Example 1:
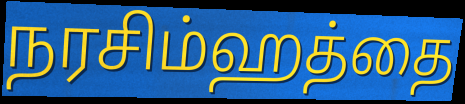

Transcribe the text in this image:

நரசிம்ஹத்தை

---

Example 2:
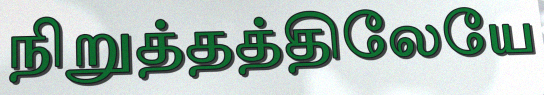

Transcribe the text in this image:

நிறுத்தத்திலேயே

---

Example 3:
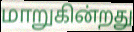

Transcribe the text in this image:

மாறுகின்றது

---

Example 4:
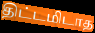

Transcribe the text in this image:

திட்டமிடாத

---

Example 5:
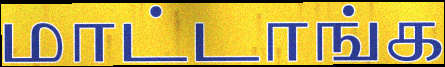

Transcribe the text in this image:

மாட்டாங்க